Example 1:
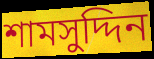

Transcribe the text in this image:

শামসুদ্দিন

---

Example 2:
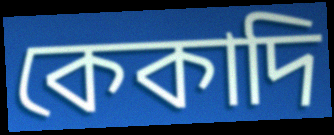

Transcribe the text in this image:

কেকাদি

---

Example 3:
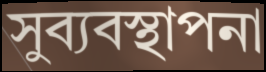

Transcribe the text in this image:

সুব্যবস্থাপনা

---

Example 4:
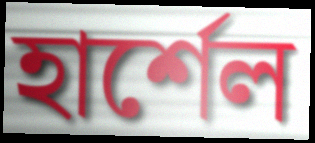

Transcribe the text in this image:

হার্শেল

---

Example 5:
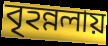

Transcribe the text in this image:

বৃহন্নলায়